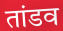
तांडव